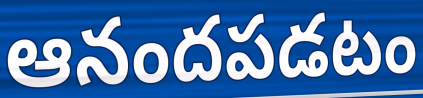
ఆనందపడటం